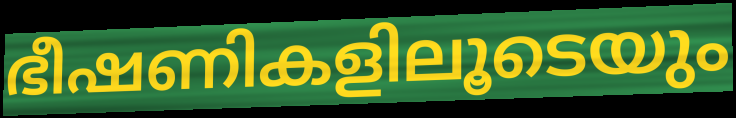
ഭീഷണികളിലൂടെയും